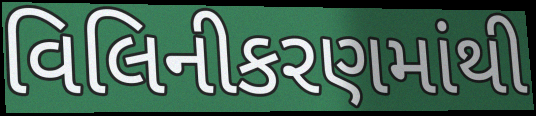
વિલિનીકરણમાંથી